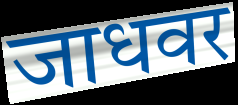
जाधवर